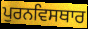
ਪੁਰਨਵਿਸਥਾਰ